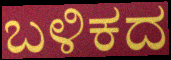
ಬಳಿಕದ